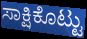
ಸಾಕ್ಷಿಕೊಟ್ಟು